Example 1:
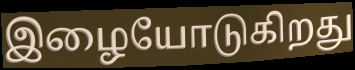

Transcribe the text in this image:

இழையோடுகிறது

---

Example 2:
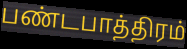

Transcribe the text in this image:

பண்டபாத்திரம்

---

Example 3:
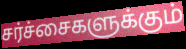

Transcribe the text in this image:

சர்ச்சைகளுக்கும்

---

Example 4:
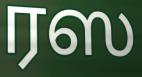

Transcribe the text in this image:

ரஸ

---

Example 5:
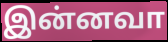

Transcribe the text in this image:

இன்னவா